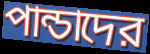
পান্ডাদের